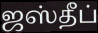
ஜஸ்தீப்